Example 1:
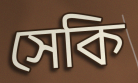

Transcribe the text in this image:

সেকি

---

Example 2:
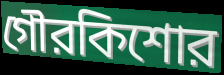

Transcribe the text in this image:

গৌরকিশোর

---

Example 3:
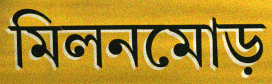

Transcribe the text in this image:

মিলনমোড়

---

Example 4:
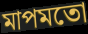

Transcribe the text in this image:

মাপমতো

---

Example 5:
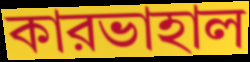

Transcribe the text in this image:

কারভাহাল